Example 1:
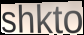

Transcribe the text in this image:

shkto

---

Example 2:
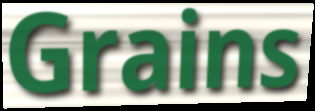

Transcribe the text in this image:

Grains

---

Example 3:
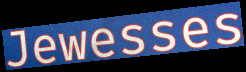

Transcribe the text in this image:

Jewesses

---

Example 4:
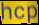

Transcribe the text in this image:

hcp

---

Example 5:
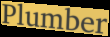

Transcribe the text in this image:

Plumber